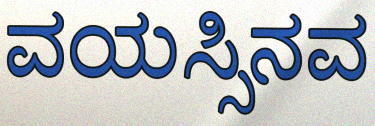
ವಯಸ್ಸಿನವ